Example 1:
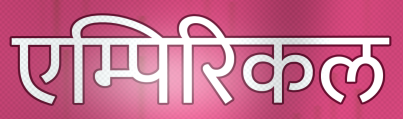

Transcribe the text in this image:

एम्पिरिकल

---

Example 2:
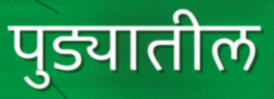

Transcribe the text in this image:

पुड्यातील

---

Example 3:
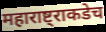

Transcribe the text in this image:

महाराष्ट्राकडेच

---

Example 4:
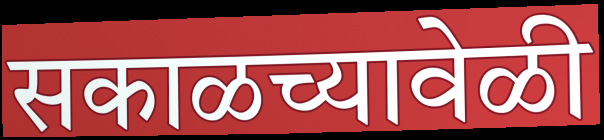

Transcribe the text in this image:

सकाळच्यावेळी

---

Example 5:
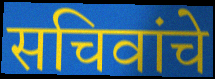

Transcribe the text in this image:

सचिवांचे